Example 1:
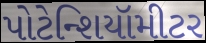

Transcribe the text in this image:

પોટેન્શિયૉમીટર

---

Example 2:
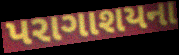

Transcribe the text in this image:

પરાગાશયના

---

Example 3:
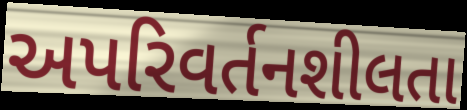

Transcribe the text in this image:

અપરિવર્તનશીલતા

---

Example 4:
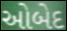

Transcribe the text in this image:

ઓબેદ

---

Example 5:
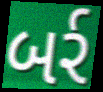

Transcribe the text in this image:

બર્ર